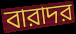
বারাদর